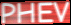
PHEV